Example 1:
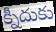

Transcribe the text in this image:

క్నీదుకు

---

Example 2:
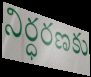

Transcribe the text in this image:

నిర్ధరణకు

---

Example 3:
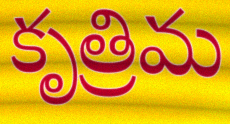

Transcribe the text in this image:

కృత్రిమ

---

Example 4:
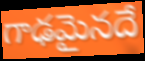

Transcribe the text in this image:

గాఢమైనదే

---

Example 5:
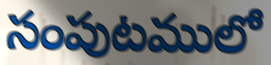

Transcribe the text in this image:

సంపుటములో